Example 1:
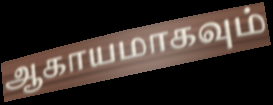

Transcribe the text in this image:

ஆகாயமாகவும்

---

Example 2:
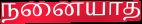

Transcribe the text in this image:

நனையாத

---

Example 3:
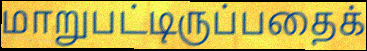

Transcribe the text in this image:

மாறுபட்டிருப்பதைக்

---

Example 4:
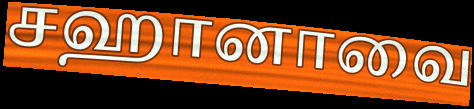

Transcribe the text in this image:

சஹானாவை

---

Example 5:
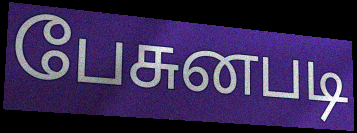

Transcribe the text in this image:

பேசுனபடி